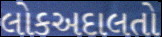
લોકઅદાલતો